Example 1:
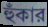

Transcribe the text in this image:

হুঁকার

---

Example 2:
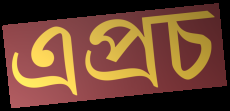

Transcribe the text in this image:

এপ্রচ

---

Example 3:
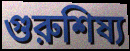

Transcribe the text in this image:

গুরুশিষ্য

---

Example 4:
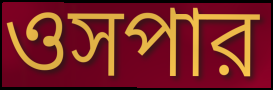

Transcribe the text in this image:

ওসপার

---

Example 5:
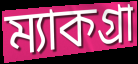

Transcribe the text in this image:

ম্যাকগ্রা